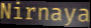
Nirnaya